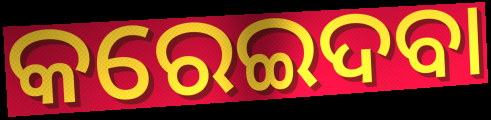
କରେଇଦବା